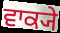
ਵਾਕ੍ਯੇ